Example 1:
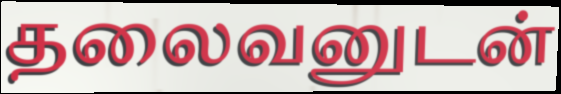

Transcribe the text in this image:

தலைவனுடன்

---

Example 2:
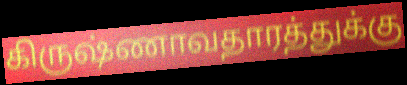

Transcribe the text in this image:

கிருஷ்ணாவதாரத்துக்கு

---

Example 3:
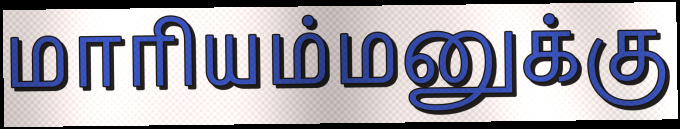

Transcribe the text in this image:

மாரியம்மனுக்கு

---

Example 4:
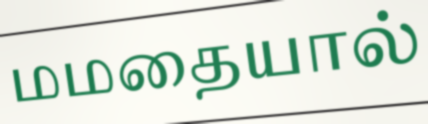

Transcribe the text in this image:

மமதையால்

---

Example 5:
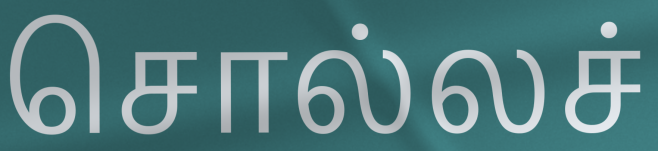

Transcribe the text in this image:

சொல்லச்